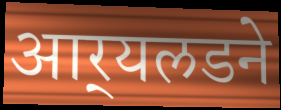
आर्यलडने